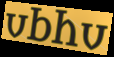
ubhu